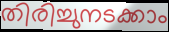
തിരിച്ചുനടക്കാം